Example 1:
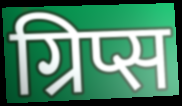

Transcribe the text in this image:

ग्रिप्स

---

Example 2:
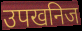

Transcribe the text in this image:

उपखनिज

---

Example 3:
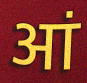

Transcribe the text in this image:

आं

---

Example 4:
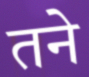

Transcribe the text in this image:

तने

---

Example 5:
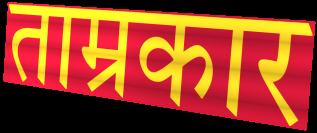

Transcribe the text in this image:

ताम्रकार